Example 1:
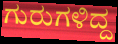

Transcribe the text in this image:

ಗುರುಗಳಿದ್ದ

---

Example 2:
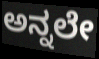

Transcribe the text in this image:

ಅನ್ನಲೇ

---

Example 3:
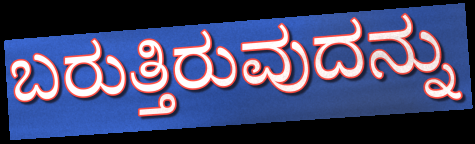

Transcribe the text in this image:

ಬರುತ್ತಿರುವುದನ್ನು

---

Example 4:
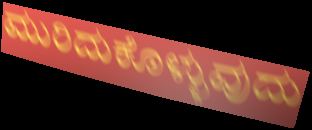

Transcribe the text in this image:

ಮುರಿದುಕೊಳ್ಳುವುದು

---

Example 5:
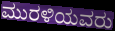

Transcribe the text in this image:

ಮುರಳಿಯವರು